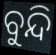
ବୁନ୍ଦି